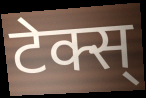
टेक्स्